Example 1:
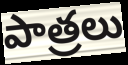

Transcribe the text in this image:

పాత్రలు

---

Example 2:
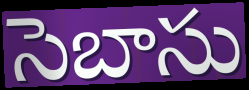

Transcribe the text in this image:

సెబాసు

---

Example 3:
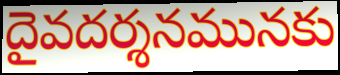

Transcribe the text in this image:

దైవదర్శనమునకు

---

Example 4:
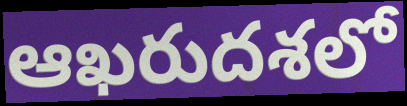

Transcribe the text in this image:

ఆఖరుదశలో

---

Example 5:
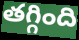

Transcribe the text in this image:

తగ్గింది